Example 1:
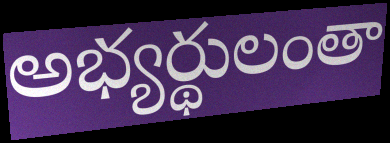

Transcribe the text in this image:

అభ్యర్థులంతా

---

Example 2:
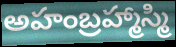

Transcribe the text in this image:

అహంబ్రహ్మాస్మి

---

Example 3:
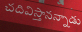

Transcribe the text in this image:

చదివిస్తానన్నాడు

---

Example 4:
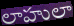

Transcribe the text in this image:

లాహులా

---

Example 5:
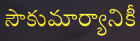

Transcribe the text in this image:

సౌకుమార్యానికీ